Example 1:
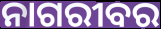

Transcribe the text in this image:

ନାଗରୀବର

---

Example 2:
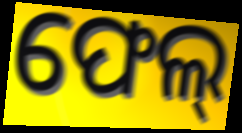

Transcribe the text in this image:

ଫେଲ୍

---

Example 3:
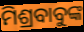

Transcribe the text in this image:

ମିଶ୍ରବାବୁଙ୍କ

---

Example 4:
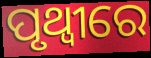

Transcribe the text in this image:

ପୃଥ୍ୱୀରେ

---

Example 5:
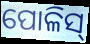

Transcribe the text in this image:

ପୋଳିସ୍